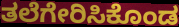
ತಲೆಗೇರಿಸಿಕೊಂಡ